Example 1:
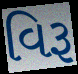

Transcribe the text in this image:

વિરૂ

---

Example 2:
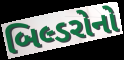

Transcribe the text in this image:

બિલ્ડરોનો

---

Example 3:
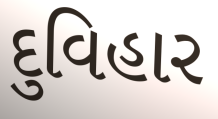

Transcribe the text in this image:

દુવિહાર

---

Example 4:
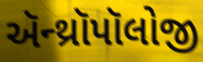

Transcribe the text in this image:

ઍન્થ્રૉપૉલોજી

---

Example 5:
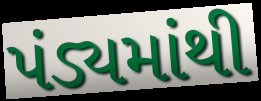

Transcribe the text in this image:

પંડ્યમાંથી